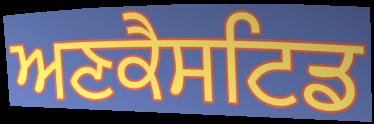
ਅਣਕੈਸਟਿਡ